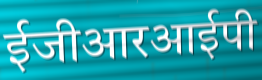
ईजीआरआईपी